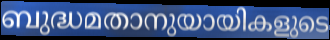
ബുദ്ധമതാനുയായികളുടെ